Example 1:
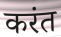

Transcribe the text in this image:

करंत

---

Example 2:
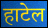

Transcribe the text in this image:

हाटेल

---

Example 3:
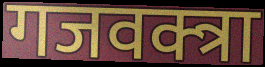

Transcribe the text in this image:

गजवक्त्रा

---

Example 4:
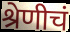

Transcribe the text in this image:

श्रेणीचं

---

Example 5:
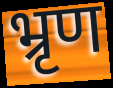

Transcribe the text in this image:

भ्रृण